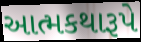
આત્મકથારૂપે